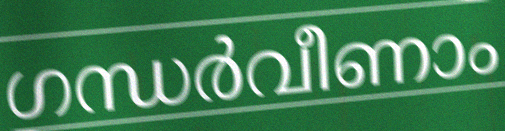
ഗന്ധർവീണാം